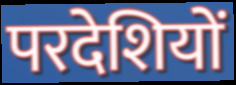
परदेशियों